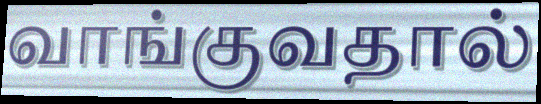
வாங்குவதால்